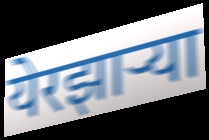
येरझार्‍या